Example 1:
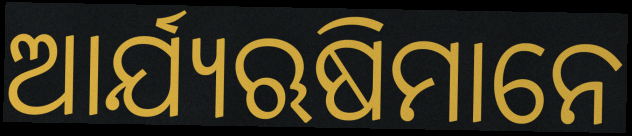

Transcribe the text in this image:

ଆର୍ଯ୍ୟଋଷିମାନେ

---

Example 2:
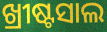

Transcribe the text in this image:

ଖ୍ରୀଷ୍ଟସାଲ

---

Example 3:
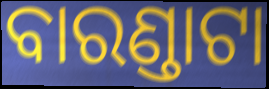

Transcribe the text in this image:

ବାରଣ୍ଡାଟା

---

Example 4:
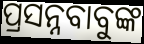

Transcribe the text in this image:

ପ୍ରସନ୍ନବାବୁଙ୍କ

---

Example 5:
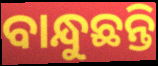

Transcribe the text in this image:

ବାନ୍ଧୁଛନ୍ତି